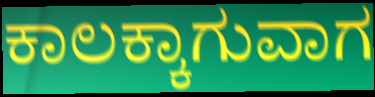
ಕಾಲಕ್ಕಾಗುವಾಗ